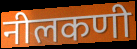
नीलकणी